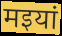
मइयां